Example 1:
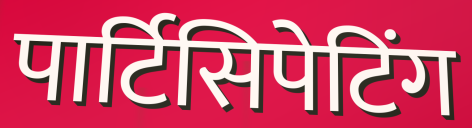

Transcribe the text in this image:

पार्टिसिपेटिंग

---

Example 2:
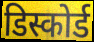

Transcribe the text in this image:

डिस्कोर्ड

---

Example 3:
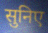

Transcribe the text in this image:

सुनिए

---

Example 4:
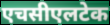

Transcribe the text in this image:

एचसीएलटेक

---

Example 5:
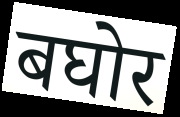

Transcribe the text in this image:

बघोर